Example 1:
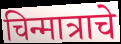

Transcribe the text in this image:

चिन्मात्राचे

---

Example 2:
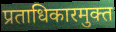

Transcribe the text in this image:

प्रताधिकारमुक्त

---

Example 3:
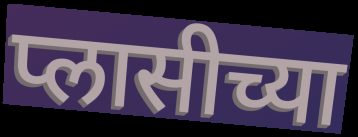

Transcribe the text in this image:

प्लासीच्या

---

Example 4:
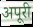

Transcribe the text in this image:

अपूरी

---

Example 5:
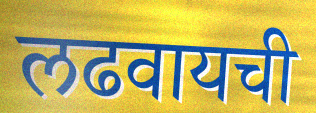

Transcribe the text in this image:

लढवायची